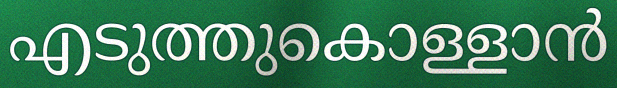
എടുത്തുകൊള്ളാൻ